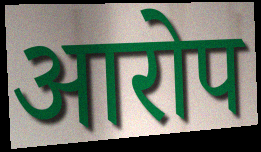
आरोप